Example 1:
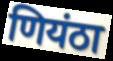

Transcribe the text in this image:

णियंठा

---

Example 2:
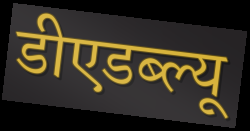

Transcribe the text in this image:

डीएडब्ल्यू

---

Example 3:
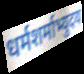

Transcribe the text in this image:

धर्मशर्माभ्युदय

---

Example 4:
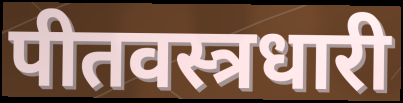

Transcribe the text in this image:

पीतवस्त्रधारी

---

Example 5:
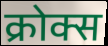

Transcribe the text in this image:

क्रोक्स